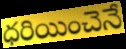
ధరియించెనే